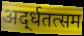
अर्द्धतत्सम